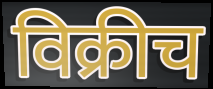
विक्रीच